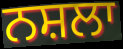
ਨਸ਼ਲਾ